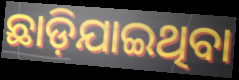
ଛାଡ଼ିଯାଇଥିବା